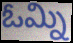
ఓమ్ని